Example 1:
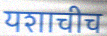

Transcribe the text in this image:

यशाचीच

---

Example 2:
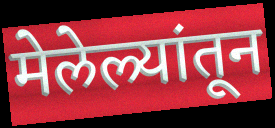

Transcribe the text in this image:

मेलेल्यांतून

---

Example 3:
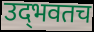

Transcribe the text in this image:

उद्‌भवतच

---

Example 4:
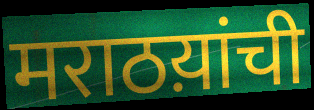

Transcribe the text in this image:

मराठय़ांची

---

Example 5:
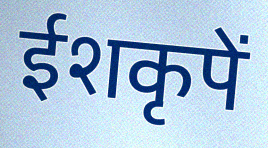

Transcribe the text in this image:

ईशकृपें